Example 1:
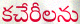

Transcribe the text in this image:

కచేరీలను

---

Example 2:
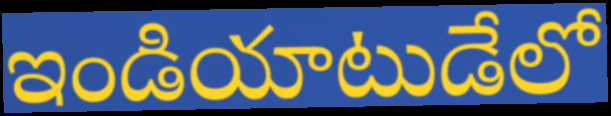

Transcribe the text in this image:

ఇండియాటుడేలో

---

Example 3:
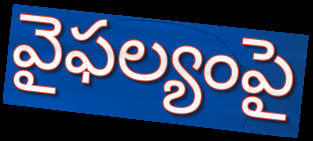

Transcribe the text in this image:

వైఫల్యంపై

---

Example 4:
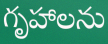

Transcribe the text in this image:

గృహాలను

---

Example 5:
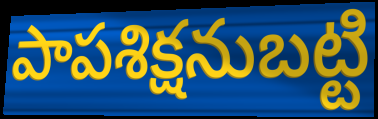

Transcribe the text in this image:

పాపశిక్షనుబట్టి